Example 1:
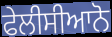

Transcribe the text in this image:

ਫੇਲੀਸੀਆਨੋ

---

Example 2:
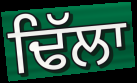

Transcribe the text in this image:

ਢਿੱਲਾ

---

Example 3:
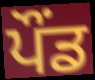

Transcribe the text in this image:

ਪੌਂਡ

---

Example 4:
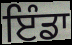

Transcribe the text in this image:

ਇੰਡਾ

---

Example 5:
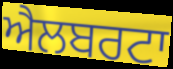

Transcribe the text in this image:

ਐਲਬਰਟਾ